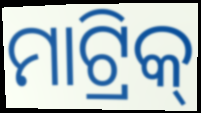
ମାଟ୍ରିକ୍